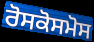
ਰੋਸਕੋਸਮੋਸ